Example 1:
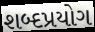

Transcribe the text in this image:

શબ્દપ્રયોગ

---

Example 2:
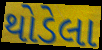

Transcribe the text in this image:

થોડેલા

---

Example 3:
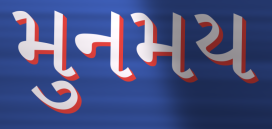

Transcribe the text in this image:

મુનમય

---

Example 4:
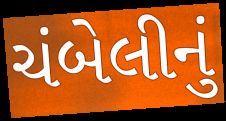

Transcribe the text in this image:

ચંબેલીનું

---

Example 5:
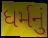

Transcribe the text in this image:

ધર્મનું